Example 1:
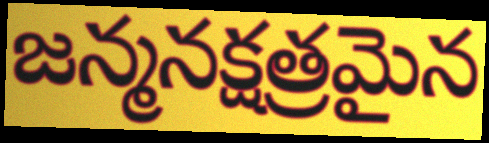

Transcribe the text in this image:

జన్మనక్షత్రమైన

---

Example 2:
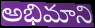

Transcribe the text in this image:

అభిమాని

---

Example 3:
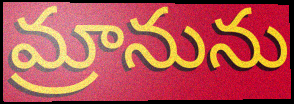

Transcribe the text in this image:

మ్రానును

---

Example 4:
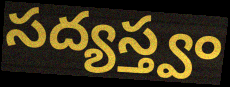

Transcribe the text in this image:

సద్యస్త్వం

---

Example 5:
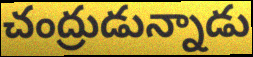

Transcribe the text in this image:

చంద్రుడున్నాడు